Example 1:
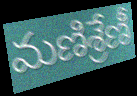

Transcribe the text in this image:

మణిశ్రేణీ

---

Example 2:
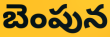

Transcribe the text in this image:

బెంపున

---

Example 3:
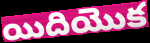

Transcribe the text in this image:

యిదియొక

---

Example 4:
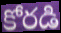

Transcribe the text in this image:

కోరడి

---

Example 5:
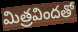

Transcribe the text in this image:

మిత్రవిందతో